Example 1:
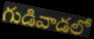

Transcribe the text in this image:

గుడివాడలో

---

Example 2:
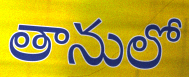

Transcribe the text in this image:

తానులో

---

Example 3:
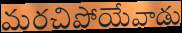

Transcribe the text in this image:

మరచిపోయేవాడు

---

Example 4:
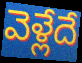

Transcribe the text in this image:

వెళ్లేదే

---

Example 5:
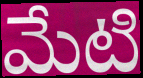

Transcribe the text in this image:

మేటి